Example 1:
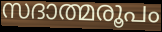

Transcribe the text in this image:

സദാത്മരൂപം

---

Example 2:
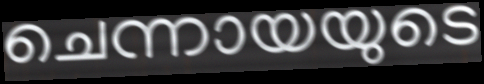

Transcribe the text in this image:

ചെന്നായയുടെ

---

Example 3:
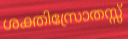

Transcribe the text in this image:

ശക്തിസ്രോതസ്സ്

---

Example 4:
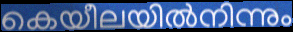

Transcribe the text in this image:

കെയീലയിൽനിന്നും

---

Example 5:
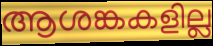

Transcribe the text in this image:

ആശങ്കകളില്ല